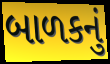
બાળકનું